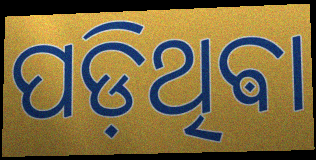
ପଡ଼ିଥିଵା